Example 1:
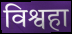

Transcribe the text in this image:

विश्वहा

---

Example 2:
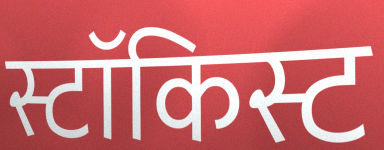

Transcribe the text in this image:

स्टॉकिस्ट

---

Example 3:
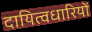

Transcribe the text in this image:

दायित्वधारियों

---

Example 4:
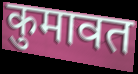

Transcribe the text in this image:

कुमावत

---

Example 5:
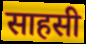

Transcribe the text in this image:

साहसी